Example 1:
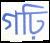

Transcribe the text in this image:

গঢ়ি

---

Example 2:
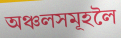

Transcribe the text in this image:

অঞ্চলসমূহলৈ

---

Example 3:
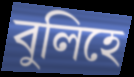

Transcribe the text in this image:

বুলিহে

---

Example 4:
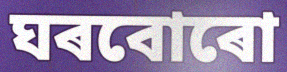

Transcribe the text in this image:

ঘৰবোৰো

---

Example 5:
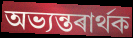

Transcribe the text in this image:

অভ্যন্তৰাৰ্থক